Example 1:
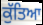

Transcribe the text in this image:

ਕੁੱਤਿਆ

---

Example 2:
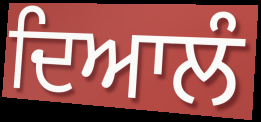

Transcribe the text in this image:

ਦਿਆਲੰ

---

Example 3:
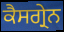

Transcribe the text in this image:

ਕੈਸਗ੍ਰੇਨ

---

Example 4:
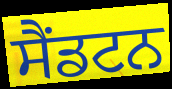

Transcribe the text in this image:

ਸੈਂਡਟਨ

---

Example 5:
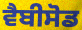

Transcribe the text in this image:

ਵੈਬੀਸੋਡ